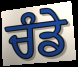
ਚੰਡੇ